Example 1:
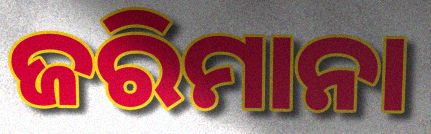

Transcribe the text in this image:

ଜରିମାନା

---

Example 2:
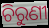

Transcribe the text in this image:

ଚିରୁଣୀ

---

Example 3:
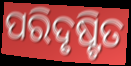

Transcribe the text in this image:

ପରିଦୃଷ୍ଟିତ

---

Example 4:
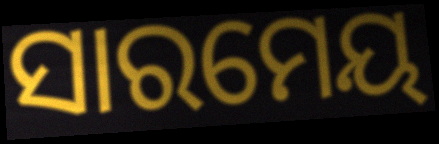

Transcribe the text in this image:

ସାରମେୟ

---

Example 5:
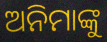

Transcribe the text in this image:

ଅନିମାଙ୍କୁ